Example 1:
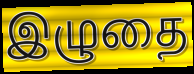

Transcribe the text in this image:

இழுதை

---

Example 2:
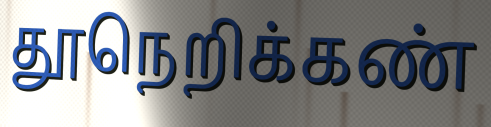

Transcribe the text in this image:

தூநெறிக்கண்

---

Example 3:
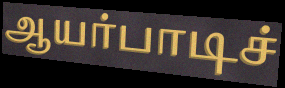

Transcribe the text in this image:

ஆயர்பாடிச்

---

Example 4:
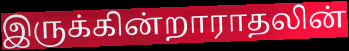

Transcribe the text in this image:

இருக்கின்றாராதலின்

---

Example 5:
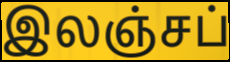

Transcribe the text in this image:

இலஞ்சப்